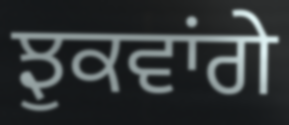
ਝੁਕਵਾਂਗੇ